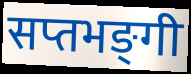
सप्तभङ्गी